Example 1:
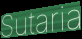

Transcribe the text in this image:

Sutaria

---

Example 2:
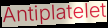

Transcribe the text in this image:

Antiplatelet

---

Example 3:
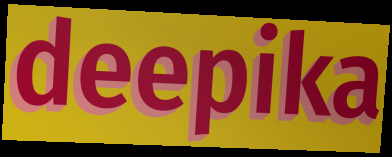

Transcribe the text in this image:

deepika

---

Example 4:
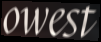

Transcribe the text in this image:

owest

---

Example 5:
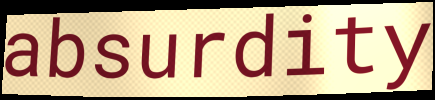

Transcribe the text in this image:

absurdity